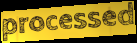
processed